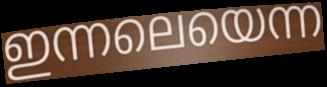
ഇന്നലെയെന്ന